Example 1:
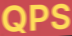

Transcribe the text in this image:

QPS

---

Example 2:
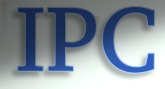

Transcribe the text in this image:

IPC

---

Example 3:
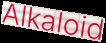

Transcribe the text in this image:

Alkaloid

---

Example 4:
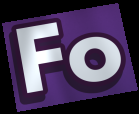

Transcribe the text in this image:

Fo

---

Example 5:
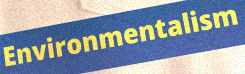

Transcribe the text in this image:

Environmentalism